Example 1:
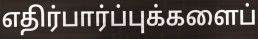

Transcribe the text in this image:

எதிர்பார்ப்புக்களைப்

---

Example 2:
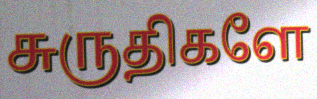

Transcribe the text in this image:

சுருதிகளே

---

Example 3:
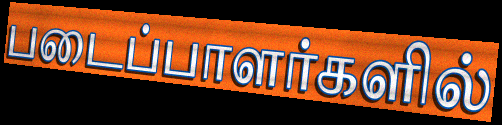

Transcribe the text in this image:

படைப்பாளர்களில்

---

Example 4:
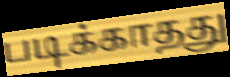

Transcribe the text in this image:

படிக்காதது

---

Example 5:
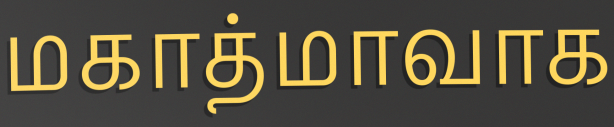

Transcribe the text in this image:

மகாத்மாவாக